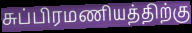
சுப்பிரமணியத்திற்கு